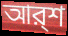
আর্‌শ